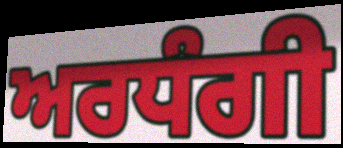
ਅਰਧੰਗੀ